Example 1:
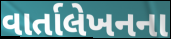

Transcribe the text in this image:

વાર્તાલેખનના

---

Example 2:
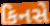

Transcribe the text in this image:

કિનસે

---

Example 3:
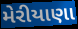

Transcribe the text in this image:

મેરીયાણા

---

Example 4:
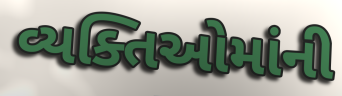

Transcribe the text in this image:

વ્યક્તિઓમાંની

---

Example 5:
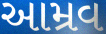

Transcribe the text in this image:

આમ્રવ